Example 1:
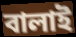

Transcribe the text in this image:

বালাই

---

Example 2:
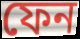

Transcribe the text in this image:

ফেন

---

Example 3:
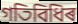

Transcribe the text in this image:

গতিবিধিৰ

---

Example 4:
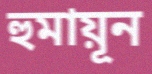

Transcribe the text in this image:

হুমায়ূন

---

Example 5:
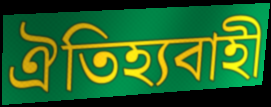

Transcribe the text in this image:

ঐতিহ্যবাহী